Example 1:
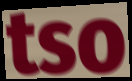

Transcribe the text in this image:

tso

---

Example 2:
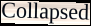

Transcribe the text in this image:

Collapsed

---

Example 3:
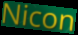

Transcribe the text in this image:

Nicon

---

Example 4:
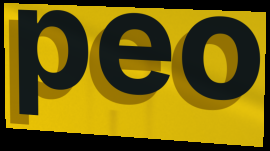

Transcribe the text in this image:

peo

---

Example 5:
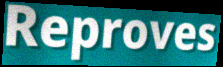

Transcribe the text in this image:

Reproves